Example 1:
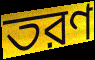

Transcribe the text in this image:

তরণ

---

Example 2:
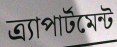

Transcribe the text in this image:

ত্র্যাপার্টমেন্ট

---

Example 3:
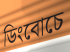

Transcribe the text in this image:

ডিংবোচে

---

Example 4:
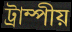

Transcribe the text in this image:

ট্রাম্পীয়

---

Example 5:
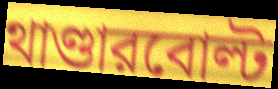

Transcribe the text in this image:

থাণ্ডারবোল্ট